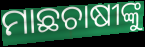
ମାଛଚାଷୀଙ୍କୁ